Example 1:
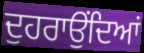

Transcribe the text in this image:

ਦੁਹਰਾਉਂਦਿਆਂ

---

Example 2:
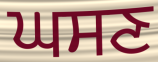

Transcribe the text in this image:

ਘਸਣ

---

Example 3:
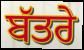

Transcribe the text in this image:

ਬੱਤਰੇ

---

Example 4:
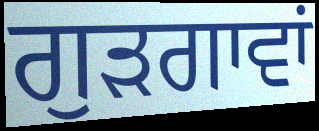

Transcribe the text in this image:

ਗੁੜਗਾਵਾਂ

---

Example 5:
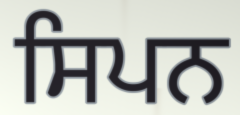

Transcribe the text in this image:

ਸਿਪਨ